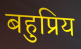
बहुप्रिय